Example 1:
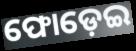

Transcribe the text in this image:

ଫୋଡ଼େଇ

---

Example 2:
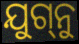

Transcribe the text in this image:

ଯୁଗ୍‌ନୁ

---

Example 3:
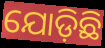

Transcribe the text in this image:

ଯୋଡ଼ିଛି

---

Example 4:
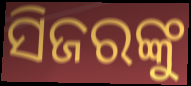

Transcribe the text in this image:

ସିଜରଙ୍କୁ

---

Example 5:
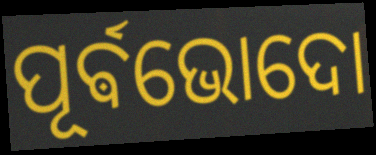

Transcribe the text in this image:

ପୂର୍ଵଭୋଦୋ